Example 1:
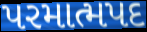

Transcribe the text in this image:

પરમાત્મપદ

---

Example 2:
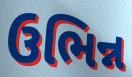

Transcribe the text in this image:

ઉભિન્ન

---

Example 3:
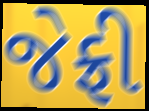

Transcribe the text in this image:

જેફ્રી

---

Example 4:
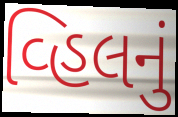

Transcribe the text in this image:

વ્હિલનું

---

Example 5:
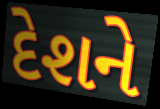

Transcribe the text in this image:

દેશને